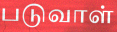
படுவாள்